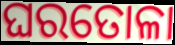
ଘରତୋଳା